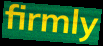
firmly